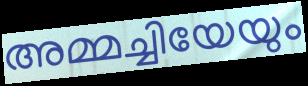
അമ്മച്ചിയേയും